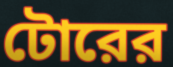
টোরের